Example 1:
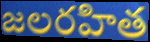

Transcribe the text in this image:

జలరహిత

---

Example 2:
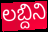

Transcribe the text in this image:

లబ్దిని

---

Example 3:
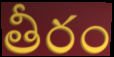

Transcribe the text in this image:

తీరం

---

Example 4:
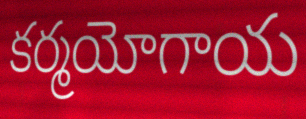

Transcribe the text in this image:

కర్మయోగాయ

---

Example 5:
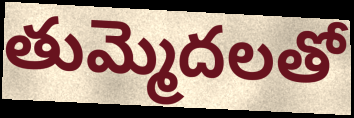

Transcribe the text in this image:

తుమ్మెదలతో